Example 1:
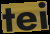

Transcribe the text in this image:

tei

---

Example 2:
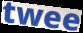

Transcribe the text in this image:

twee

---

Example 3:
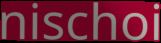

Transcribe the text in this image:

nischoi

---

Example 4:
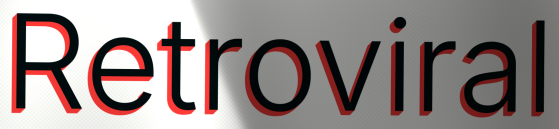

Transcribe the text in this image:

Retroviral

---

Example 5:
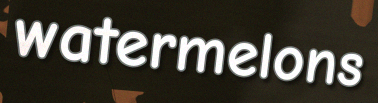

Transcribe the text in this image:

watermelons